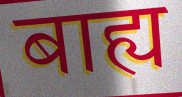
बाह्य